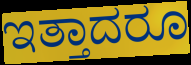
ಇತ್ತಾದರೂ